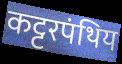
कट्टरपंथिय